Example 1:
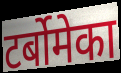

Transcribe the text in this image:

टर्बोमेका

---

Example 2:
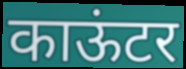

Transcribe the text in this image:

काऊंटर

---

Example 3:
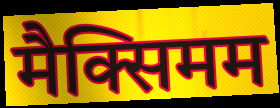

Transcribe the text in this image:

मैक्सिमम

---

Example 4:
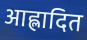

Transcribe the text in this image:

आह्लादित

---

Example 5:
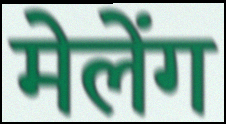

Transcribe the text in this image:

मेलेंग